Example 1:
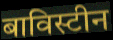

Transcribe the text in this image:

बाविस्टीन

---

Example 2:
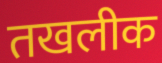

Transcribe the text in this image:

तखलीक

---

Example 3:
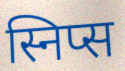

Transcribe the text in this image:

स्निप्स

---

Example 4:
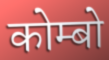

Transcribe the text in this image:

कोम्बो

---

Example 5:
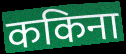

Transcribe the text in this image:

ककिना